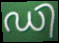
ഡി